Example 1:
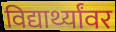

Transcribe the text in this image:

विद्यार्थ्यांवर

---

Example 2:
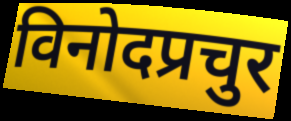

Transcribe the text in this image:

विनोदप्रचुर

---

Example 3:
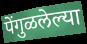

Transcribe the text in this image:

पेंगुळलेल्या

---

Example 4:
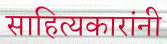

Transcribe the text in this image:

साहित्यकारांनी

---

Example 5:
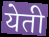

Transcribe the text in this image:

येती